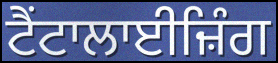
ਟੈਂਟਾਲਾਈਜ਼ਿੰਗ